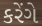
કરેંગે